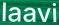
laavi